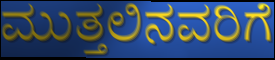
ಮುತ್ತಲಿನವರಿಗೆ